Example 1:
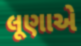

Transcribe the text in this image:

લૂણાએ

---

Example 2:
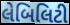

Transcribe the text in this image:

લેબિલિટી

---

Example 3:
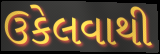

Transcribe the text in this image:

ઉકેલવાથી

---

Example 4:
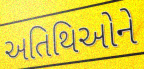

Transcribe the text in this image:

અતિથિઓને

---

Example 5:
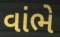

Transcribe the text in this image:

વાંભે